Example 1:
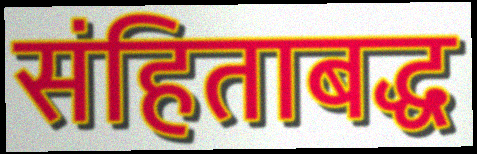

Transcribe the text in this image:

संहिताबद्ध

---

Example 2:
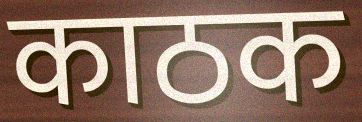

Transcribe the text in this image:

काठक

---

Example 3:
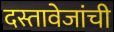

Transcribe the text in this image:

दस्तावेजांची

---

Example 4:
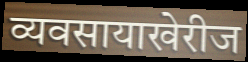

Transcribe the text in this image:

व्यवसायाखेरीज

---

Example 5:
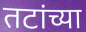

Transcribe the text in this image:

तटांच्या